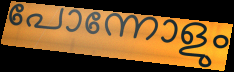
പോന്നോളും